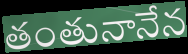
తంతునానేన